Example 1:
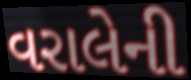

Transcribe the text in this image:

વરાલેની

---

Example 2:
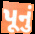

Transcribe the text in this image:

પૂનું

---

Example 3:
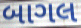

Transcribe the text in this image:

બાગલ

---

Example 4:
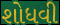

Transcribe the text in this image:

શોધવી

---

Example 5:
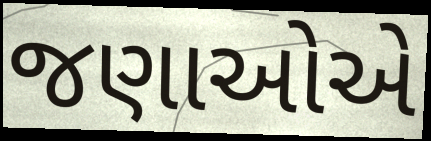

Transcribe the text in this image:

જણાઓએ